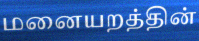
மனையறத்தின்